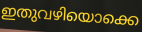
ഇതുവഴിയൊക്കെ